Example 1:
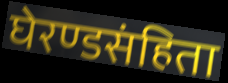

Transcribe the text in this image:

घेरण्डसंहिता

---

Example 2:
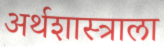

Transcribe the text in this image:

अर्थशास्त्राला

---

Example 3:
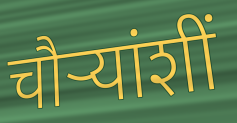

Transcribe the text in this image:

चौर्‍यांशीं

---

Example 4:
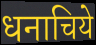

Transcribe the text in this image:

धनाचिये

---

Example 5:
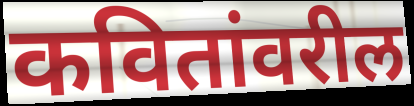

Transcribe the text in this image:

कवितांवरील